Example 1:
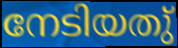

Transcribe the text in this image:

നേടിയതു്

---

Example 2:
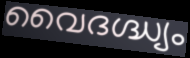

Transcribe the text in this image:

വൈദഗ്ദ്ധ്യം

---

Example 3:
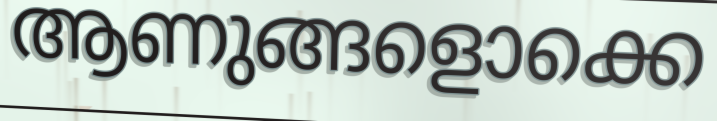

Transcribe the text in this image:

ആണുങ്ങളൊക്കെ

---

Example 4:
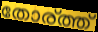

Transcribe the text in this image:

തോര്ത്ത്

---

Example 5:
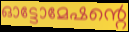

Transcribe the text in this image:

ഓട്ടോമേഷന്റെ